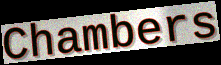
Chambers